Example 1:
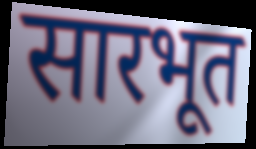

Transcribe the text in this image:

सारभूत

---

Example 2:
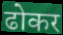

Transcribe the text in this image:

ढोकर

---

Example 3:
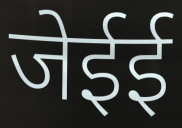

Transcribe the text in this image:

जेईई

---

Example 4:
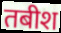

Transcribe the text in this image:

तबीश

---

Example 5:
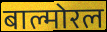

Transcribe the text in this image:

बाल्‍मोरल